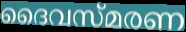
ദൈവസ്മരണ